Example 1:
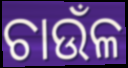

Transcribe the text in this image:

ଚାଉଁଳ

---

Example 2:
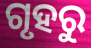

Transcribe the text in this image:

ଗୃହରୁ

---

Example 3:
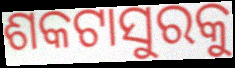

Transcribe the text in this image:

ଶକଟାସୁରକୁ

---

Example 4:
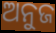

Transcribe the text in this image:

ଅନୁଜ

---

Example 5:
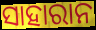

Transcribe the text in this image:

ସାହାରାନ